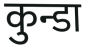
कुन्डा